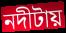
নদীটায়